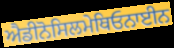
ਐਡੀਨੋਸਿਲਮੇਥਿਓਨਾਈਨ